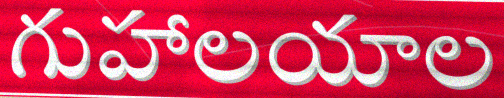
గుహాలయాల